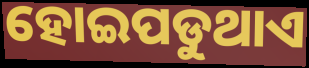
ହୋଇପଡୁଥାଏ